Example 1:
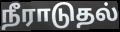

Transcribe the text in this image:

நீராடுதல்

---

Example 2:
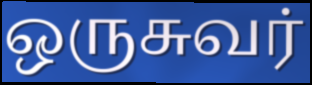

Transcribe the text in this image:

ஒருசுவர்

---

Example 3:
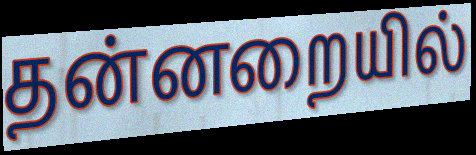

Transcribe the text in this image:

தன்னறையில்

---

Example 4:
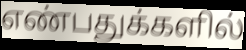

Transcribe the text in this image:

எண்பதுக்களில்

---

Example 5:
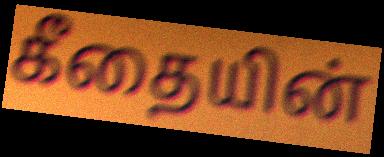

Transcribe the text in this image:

கீதையின்